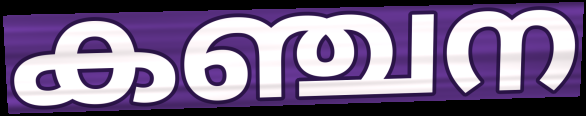
കഞ്ചന